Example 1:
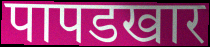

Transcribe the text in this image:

पापडखार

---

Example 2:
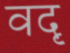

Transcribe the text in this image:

वदृ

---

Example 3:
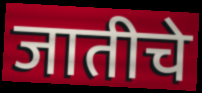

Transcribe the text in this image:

जातीचे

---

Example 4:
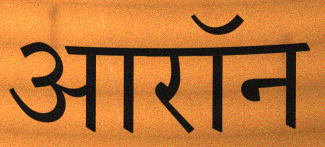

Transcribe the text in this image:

आरॉन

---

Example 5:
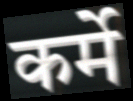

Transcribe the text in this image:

कर्मे